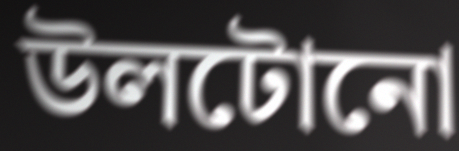
উলটোনো